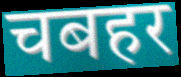
चबहर